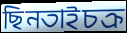
ছিনতাইচক্র